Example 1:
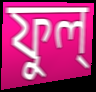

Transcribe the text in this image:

ফুল্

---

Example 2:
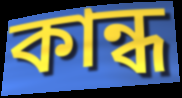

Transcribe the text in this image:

কান্ধ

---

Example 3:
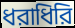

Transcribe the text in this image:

ধরাধিরি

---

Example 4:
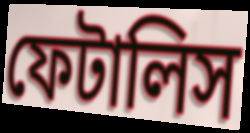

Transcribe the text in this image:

ফেটালিস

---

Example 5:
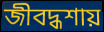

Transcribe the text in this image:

জীবদ্ধশায়